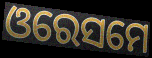
ଓରେସମେ